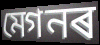
মেগনৰ